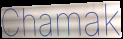
Chamak